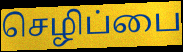
செழிப்பை